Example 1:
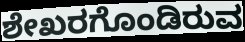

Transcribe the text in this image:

ಶೇಖರಗೊಂಡಿರುವ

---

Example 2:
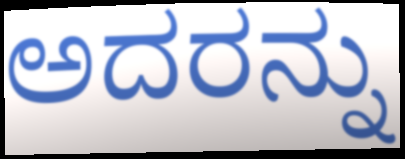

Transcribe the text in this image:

ಅದರನ್ನು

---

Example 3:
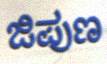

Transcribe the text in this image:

ಜಿಪುಣ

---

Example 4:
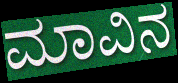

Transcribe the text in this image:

ಮಾವಿನ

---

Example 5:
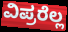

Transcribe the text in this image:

ವಿಪ್ರರೆಲ್ಲ